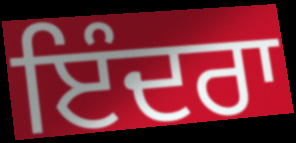
ਇੰਦਰਾ